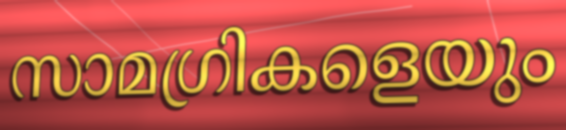
സാമഗ്രികളെയും